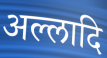
अल्लादि